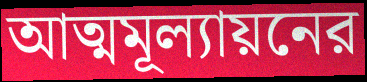
আত্মমূল্যায়নের